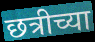
छत्रीच्या